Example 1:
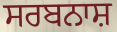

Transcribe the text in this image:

ਸਰਬਨਾਸ਼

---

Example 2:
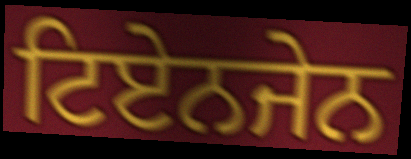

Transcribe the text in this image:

ਟਿਏਨਜੇਨ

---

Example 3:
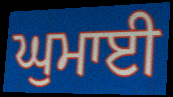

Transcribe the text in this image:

ਘੁਮਾਈ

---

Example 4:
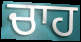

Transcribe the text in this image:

ਚਾਹ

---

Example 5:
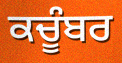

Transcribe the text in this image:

ਕਚੂੰਬਰ